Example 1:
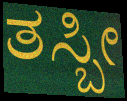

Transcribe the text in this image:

ತಸ್ಬೀ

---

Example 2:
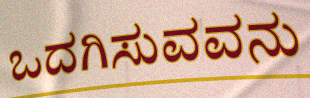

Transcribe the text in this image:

ಒದಗಿಸುವವನು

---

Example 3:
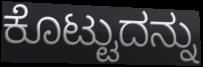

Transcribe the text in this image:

ಕೊಟ್ಟುದನ್ನು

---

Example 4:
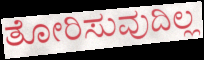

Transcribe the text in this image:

ತೋರಿಸುವುದಿಲ್ಲ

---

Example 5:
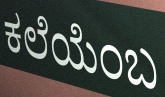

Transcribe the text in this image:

ಕಲೆಯೆಂಬ